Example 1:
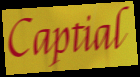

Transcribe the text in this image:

Captial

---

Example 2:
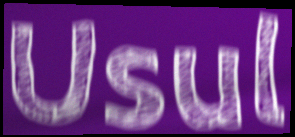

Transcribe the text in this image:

Usul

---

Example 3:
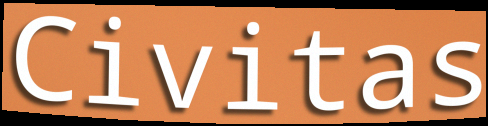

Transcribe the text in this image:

Civitas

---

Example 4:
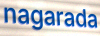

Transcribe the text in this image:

nagarada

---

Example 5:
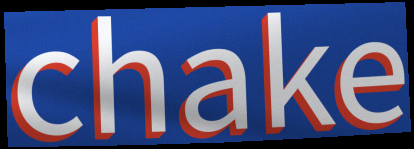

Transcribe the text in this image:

chake